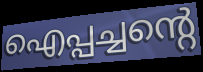
ഐപ്പച്ചന്റെ